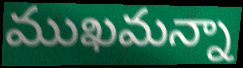
ముఖమన్నా